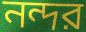
নন্দর